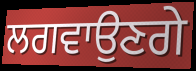
ਲਗਵਾਉਣਗੇ